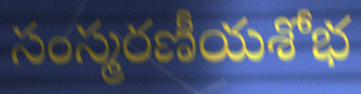
సంస్మరణీయశోభ